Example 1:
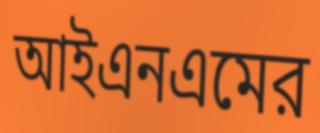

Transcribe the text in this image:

আইএনএমের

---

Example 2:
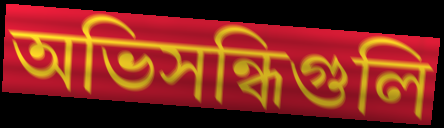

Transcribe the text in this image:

অভিসন্ধিগুলি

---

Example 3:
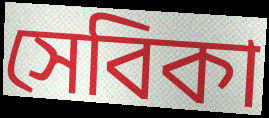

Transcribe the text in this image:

সেবিকা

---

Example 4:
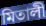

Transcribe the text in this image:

মিতালী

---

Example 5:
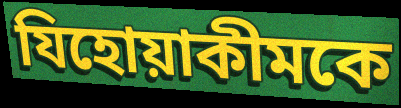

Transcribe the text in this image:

যিহোয়াকীমকে